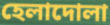
হেলাদোলা